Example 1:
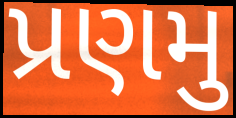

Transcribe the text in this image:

પ્રણમુ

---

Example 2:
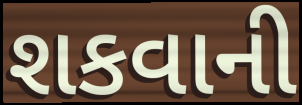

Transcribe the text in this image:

શકવાની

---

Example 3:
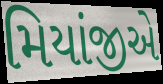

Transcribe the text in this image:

મિયાંજીએ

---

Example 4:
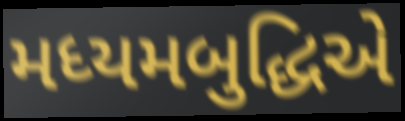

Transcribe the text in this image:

મધ્યમબુદ્ધિએ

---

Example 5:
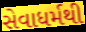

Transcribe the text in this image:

સેવાધર્મથી